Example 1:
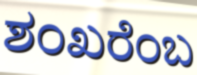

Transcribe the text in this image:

ಶಂಖರೆಂಬ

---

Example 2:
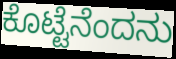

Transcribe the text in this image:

ಕೊಟ್ಟೆನೆಂದನು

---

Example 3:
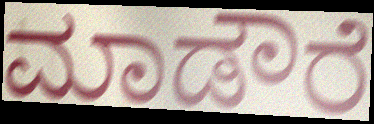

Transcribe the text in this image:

ಮಾಡೌರೆ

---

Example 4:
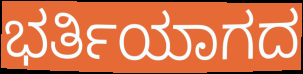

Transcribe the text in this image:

ಭರ್ತಿಯಾಗದ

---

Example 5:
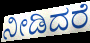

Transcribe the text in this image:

ನೀಡಿದರೆ